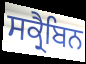
ਸਕ੍ਰੈਬਿਨ